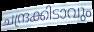
ചന്ദ്രക്കിടാവും